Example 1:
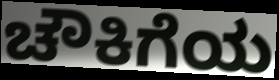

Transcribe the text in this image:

ಚೌಕಿಗೆಯ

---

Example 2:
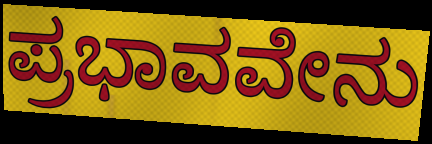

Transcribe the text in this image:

ಪ್ರಭಾವವೇನು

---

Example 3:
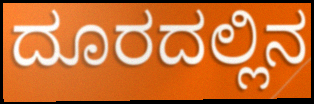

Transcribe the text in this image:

ದೂರದಲ್ಲಿನ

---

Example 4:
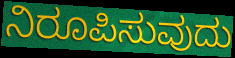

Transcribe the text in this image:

ನಿರೂಪಿಸುವುದು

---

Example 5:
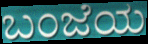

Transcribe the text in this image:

ಬಂಜೆಯ